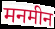
मनमीन